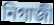
নিগাজী